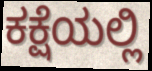
ಕಕ್ಷೆಯಲ್ಲಿ